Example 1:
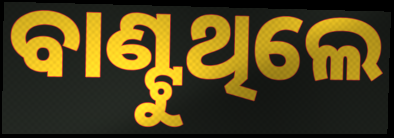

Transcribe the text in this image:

ବାଣ୍ଟୁଥିଲେ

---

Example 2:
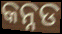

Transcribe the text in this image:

କନ୍ନଡ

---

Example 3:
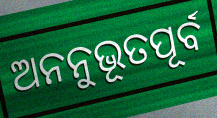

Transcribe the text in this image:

ଅନନୁଭୂତପୂର୍ବ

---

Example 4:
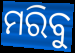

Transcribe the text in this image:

ମରିବୁ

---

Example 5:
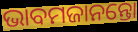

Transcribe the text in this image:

ଭାବମଜାନନ୍ତୋ